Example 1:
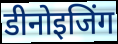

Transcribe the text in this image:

डीनोइजिंग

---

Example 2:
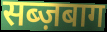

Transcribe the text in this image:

सब्ज़बाग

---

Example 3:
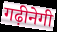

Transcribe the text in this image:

गढ़ीनेगी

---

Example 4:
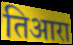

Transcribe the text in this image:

तिआरा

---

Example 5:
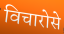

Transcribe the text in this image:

विचारोसे